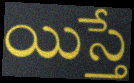
యిస్తే